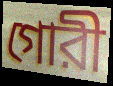
গোরী